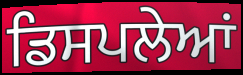
ਡਿਸਪਲੇਆਂ